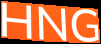
HNG